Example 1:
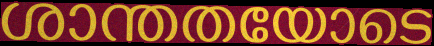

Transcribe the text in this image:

ശാന്തതയോടെ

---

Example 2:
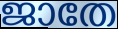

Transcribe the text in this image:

ജാതേ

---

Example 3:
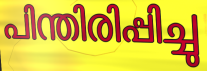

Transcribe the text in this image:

പിന്തിരിപ്പിച്ചു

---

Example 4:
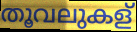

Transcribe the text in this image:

തൂവലുകള്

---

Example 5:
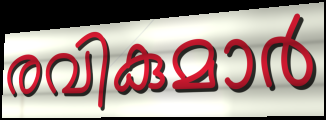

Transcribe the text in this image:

രവികുമാർ